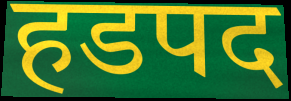
हडपद